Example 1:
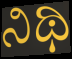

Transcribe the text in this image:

ನಿಥಿ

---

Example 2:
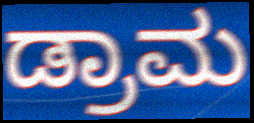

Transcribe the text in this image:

ಡ್ರಾಮ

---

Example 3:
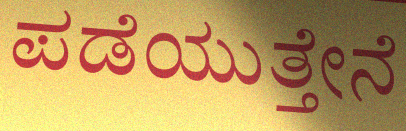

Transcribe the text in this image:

ಪಡೆಯುತ್ತೇನೆ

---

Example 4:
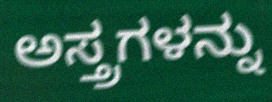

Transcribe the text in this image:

ಅಸ್ತ್ರಗಳನ್ನು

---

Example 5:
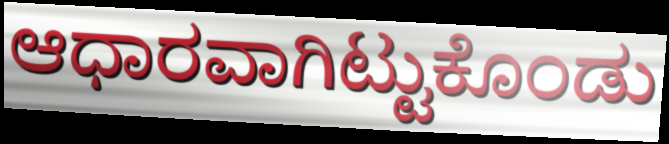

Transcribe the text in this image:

ಆಧಾರವಾಗಿಟ್ಟುಕೊಂಡು